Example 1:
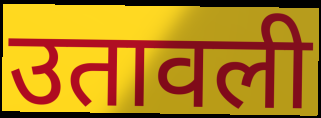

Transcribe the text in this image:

उतावली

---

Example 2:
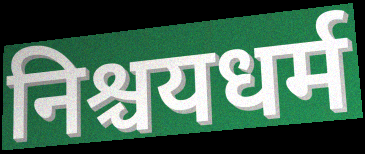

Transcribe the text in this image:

निश्चयधर्म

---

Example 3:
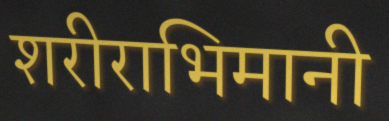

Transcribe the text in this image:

शरीराभिमानी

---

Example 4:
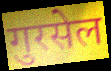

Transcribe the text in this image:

गुरसेल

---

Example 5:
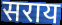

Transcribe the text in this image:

सराय